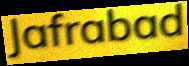
Jafrabad